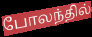
போலந்தில்